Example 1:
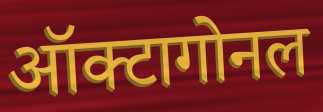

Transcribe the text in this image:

ऑक्टागोनल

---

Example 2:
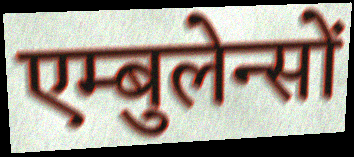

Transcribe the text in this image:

एम्बुलेन्सों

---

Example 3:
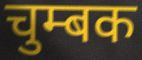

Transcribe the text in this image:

चुम्बक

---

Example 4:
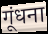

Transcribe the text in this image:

गूंधना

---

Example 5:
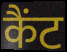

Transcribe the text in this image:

कैंट